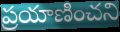
ప్రయాణించని